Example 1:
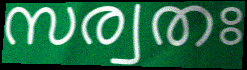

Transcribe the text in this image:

സര്വതഃ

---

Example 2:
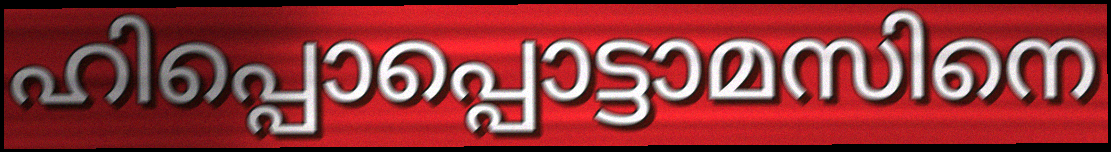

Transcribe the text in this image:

ഹിപ്പൊപ്പൊട്ടാമസിനെ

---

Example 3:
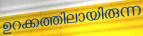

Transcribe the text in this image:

ഉറക്കത്തിലായിരുന്ന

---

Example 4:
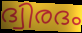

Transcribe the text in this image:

ദ്വിരദം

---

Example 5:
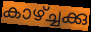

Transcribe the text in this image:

കാഴ്ച്ചക്കു